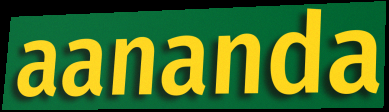
aananda